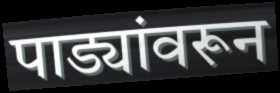
पाड्यांवरून